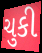
ચુકી